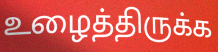
உழைத்திருக்க